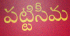
పట్టిసీమ